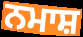
ਨਮਾਸ਼